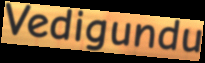
Vedigundu